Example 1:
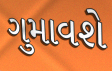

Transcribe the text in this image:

ગુમાવશે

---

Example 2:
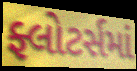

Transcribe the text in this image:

ફ્લોટર્સમાં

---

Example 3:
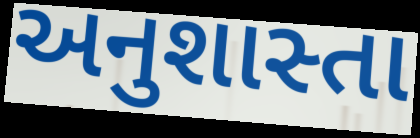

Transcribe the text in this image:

અનુશાસ્તા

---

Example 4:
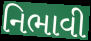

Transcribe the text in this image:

નિભાવી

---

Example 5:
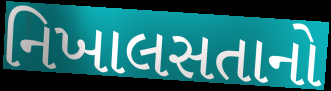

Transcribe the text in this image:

નિખાલસતાનો